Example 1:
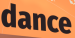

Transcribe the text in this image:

dance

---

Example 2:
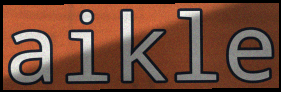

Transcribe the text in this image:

aikle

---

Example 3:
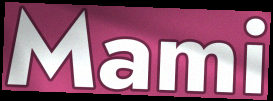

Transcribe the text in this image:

Mami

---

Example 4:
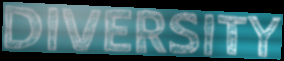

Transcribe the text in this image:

DIVERSITY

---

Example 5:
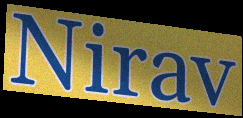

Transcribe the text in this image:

Nirav